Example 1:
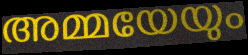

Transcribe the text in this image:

അമ്മയേയും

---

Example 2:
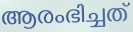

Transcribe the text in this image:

ആരംഭിച്ചത്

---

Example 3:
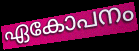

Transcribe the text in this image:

ഏകോപനം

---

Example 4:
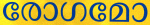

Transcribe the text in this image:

രോഗമോ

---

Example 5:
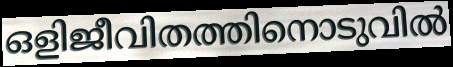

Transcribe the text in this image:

ഒളിജീവിതത്തിനൊടുവിൽ